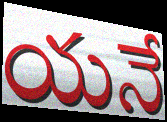
యనే